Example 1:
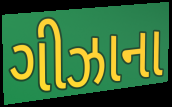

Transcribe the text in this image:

ગીઝાના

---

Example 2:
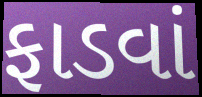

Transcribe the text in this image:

ફાડવાં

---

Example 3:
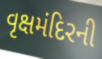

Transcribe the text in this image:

વૃક્ષમંદિરની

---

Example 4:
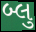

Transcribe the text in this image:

બ્લુ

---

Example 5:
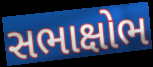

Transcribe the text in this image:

સભાક્ષોભ